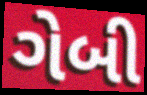
ગેબી